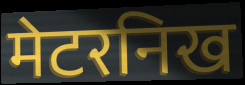
मेटरनिख